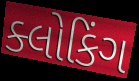
ક્લોકિંગ